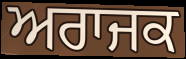
ਅਰਾਜਕ